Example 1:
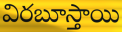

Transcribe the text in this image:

విరబూస్తాయి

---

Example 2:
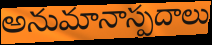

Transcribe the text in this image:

అనుమానాస్పదాలు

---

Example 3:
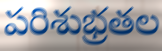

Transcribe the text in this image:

పరిశుభ్రతల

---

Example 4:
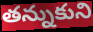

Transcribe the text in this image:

తన్నుకుని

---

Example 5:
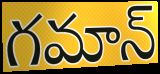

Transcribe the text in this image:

గమాన్